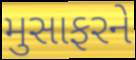
મુસાફરને